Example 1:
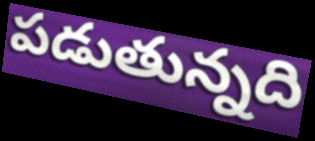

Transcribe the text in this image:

పడుతున్నది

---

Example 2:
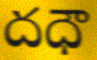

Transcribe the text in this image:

దధౌ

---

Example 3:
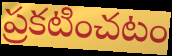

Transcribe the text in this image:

ప్రకటించటం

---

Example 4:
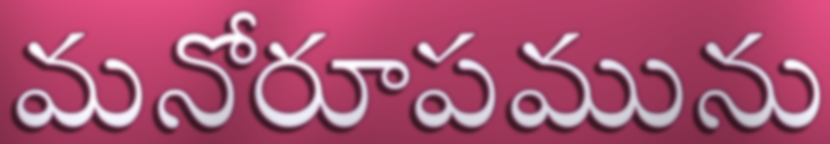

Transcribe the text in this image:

మనోరూపమును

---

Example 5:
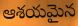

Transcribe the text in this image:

ఆశయమైన